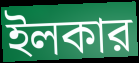
ইলকার